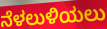
ನೆಳಲುಳಿಯಲು